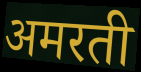
अमरती